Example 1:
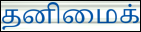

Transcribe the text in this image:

தனிமைக்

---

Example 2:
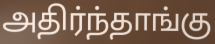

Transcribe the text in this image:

அதிர்ந்தாங்கு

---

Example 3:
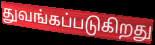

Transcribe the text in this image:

துவங்கப்படுகிறது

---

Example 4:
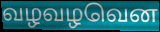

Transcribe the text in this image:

வழவழவென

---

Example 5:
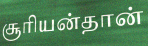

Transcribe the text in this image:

சூரியன்தான்